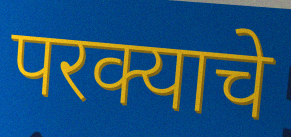
परक्याचे